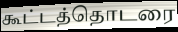
கூட்டத்தொடரை